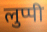
लुप्पी